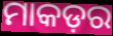
ମାକଡ଼ର